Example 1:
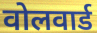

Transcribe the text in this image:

वोलवार्ड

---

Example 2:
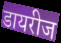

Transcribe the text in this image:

डायरीज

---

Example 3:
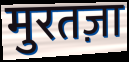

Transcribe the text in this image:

मुरतज़ा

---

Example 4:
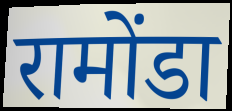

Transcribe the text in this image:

रामोंडा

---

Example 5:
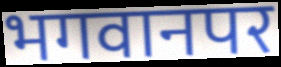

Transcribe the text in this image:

भगवानपर